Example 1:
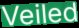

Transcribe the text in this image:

Veiled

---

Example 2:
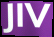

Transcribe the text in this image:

JIV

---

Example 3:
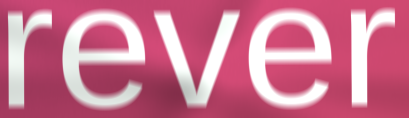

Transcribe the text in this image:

rever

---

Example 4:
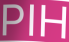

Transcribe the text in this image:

PIH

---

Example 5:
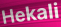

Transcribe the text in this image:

Hekali